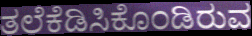
ತಲೆಕೆಡಿಸಿಕೊಂಡಿರುವ